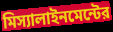
মিস্যালাইনমেন্টের